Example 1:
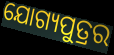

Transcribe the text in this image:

ଯୋଗ୍ୟପୁତ୍ରର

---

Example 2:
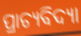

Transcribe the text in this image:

ପ୍ରାଚ୍ୟବିଦ୍ୟା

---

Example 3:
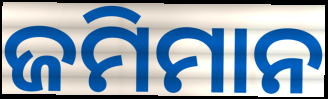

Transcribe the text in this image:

ଜମିମାନ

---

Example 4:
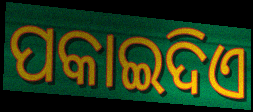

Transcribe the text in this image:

ପକାଇଦିଏ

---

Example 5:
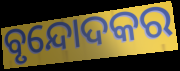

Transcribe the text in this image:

ବୃନ୍ଦୋଦକର